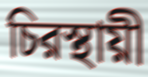
চিরস্থায়ী